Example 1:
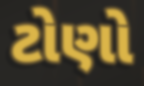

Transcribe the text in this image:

ટોણો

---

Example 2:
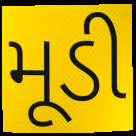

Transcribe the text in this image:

મૂડી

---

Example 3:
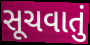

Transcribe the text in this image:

સૂચવાતું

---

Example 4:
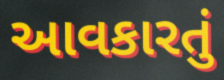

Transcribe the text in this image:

આવકારતું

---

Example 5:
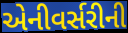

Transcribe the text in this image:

એનીવર્સરીની